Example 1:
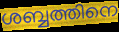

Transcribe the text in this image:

ശബ്ബത്തിനെ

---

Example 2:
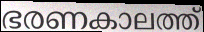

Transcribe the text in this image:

ഭരണകാലത്ത്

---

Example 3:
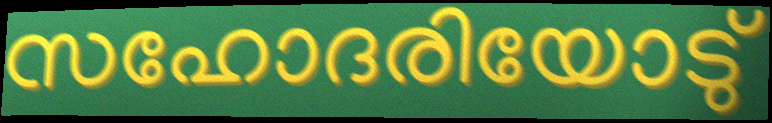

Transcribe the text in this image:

സഹോദരിയോടു്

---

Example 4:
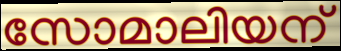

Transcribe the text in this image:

സോമാലിയന്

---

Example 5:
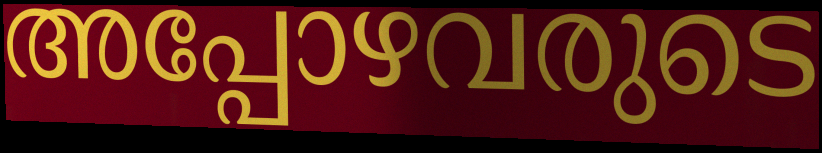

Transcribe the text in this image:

അപ്പോഴവരുടെ